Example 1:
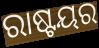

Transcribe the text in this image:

ରାଷ୍ଟୟର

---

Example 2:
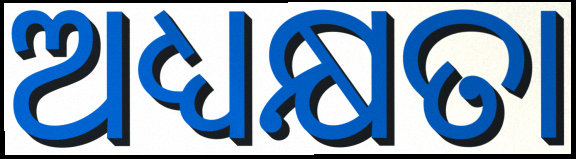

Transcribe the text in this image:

ଅଧ୍ୟକ୍ଷତା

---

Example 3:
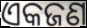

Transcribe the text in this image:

ଏକଜଣ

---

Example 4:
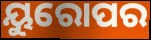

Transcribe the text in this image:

ୟୁରୋପର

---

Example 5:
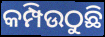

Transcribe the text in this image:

କମ୍ପିଉଠୁଛି